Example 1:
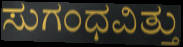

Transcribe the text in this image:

ಸುಗಂಧವಿತ್ತು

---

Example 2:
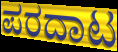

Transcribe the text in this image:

ಪರದಾಟ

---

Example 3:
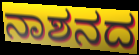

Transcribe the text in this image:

ನಾಶನದ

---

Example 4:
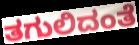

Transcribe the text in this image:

ತಗುಲಿದಂತೆ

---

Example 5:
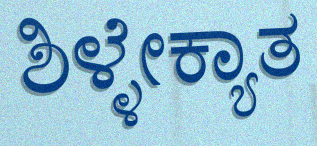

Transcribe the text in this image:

ಶಿಳ್ಳೇಕ್ಯಾತ